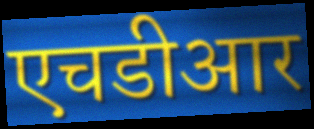
एचडीआर